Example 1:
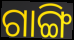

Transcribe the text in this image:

ଗାଙ୍ଗି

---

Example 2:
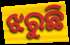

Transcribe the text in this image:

ଝରୁଛି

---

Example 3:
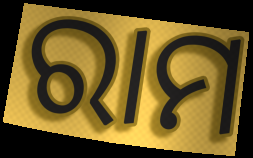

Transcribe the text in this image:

ରାମ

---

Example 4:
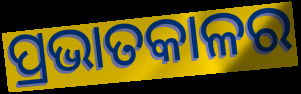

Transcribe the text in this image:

ପ୍ରଭାତକାଳର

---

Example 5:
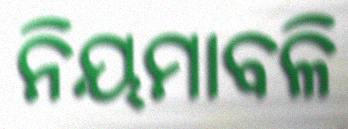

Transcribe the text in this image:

ନିୟମାବଳି